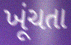
ખૂંચતા